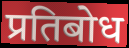
प्रतिबोध